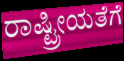
ರಾಷ್ಟ್ರೀಯತೆಗೆ